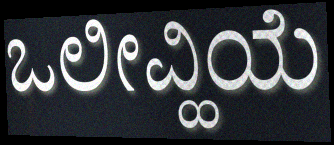
ಒಲೀವ್ಹಿಯೆ